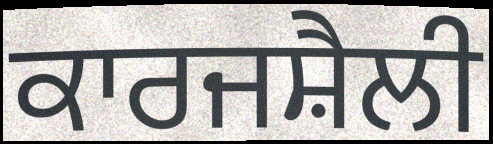
ਕਾਰਜਸ਼ੈਲੀ